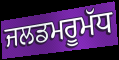
ਜਲਡਮਰੂਮੱਧ